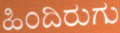
ಹಿಂದಿರುಗು